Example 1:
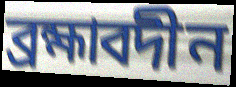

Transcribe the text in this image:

ব্ৰহ্মাবদীন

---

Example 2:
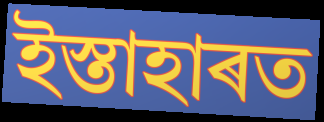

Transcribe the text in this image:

ইস্তাহাৰত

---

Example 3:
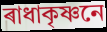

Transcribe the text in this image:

ৰাধাকৃষ্ণনে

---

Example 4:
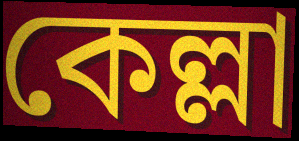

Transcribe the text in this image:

কেল্লা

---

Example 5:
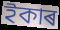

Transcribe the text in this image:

ইকাৰ